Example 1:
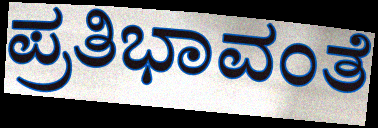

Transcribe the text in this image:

ಪ್ರತಿಭಾವಂತೆ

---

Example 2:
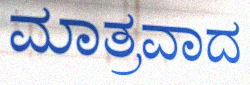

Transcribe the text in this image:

ಮಾತ್ರವಾದ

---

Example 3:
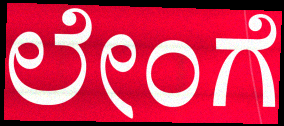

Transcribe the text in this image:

ಲೇಂಗೆ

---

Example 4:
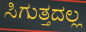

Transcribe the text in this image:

ಸಿಗುತ್ತದಲ್ಲ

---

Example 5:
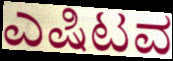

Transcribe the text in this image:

ಎಷಿಟವ